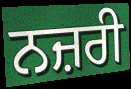
ਨਜ਼ਰੀ